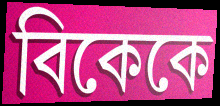
বিকেকে